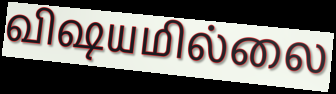
விஷயமில்லை